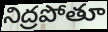
నిద్రపోతూ